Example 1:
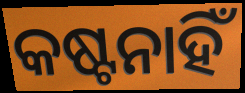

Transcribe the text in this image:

କଷ୍ଟନାହିଁ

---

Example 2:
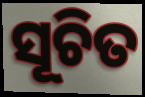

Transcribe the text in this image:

ସୂଚିତ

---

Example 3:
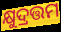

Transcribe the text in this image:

କ୍ଷୁଦ୍ରତ୍ତମ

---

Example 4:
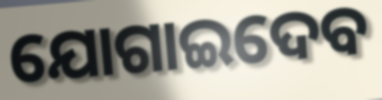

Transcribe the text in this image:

ଯୋଗାଇଦେବ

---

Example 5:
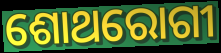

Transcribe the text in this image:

ଶୋଥରୋଗୀ